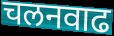
चलनवाढ